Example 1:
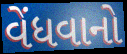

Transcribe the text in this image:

વેંધવાનો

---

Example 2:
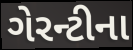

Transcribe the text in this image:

ગેરન્ટીના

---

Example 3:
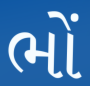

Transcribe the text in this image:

ભોં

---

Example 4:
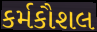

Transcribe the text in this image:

કર્મકૌશલ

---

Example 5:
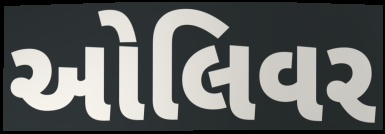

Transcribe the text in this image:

ઓલિવર